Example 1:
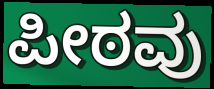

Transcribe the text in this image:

ಪೀಠವು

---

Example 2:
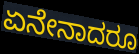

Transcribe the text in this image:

ಏನೇನಾದರೂ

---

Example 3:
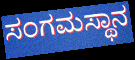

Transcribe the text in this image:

ಸಂಗಮಸ್ಥಾನ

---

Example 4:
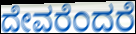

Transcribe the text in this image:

ದೇವರೆಂದರೆ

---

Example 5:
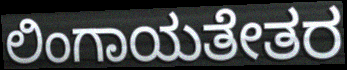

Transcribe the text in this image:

ಲಿಂಗಾಯತೇತರ